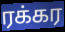
ரக்கர